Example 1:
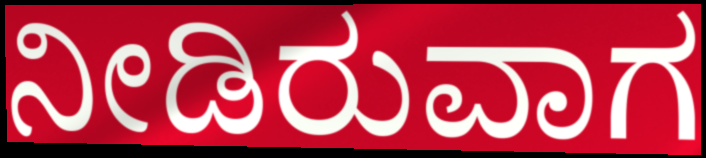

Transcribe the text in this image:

ನೀಡಿರುವಾಗ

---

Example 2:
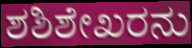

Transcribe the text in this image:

ಶಶಿಶೇಖರನು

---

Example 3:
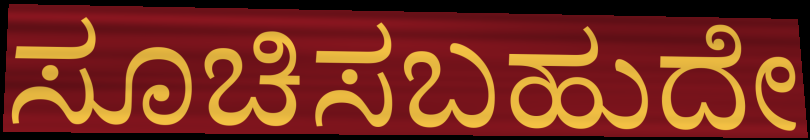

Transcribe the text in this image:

ಸೂಚಿಸಬಹುದೇ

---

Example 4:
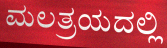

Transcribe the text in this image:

ಮಲತ್ರಯದಲ್ಲಿ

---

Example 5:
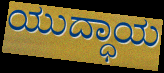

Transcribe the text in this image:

ಯುದ್ಧಾಯ